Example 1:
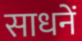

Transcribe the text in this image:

साधनें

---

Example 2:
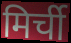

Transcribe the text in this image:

मिर्ची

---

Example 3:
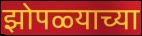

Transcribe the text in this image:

झोपळ्याच्या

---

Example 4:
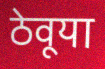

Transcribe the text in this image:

ठेवूया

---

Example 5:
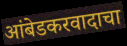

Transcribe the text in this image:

आंबेडकरवादाचा